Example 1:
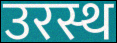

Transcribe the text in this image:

उरस्थ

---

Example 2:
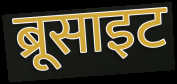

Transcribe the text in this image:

ब्रूसाइट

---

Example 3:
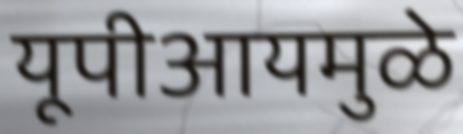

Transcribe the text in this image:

यूपीआयमुळे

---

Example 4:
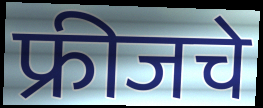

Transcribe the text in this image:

फ्रीजचे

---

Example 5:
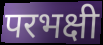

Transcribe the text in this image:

परभक्षी